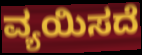
ವ್ಯಯಿಸದೆ